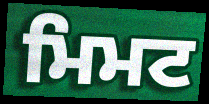
ਮਿਮਟ